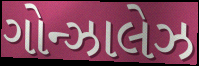
ગોન્ઝાલેઝ